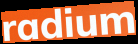
radium